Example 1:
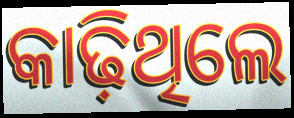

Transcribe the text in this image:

କାଢ଼ିଥିଲେ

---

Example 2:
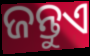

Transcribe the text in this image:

ଜନ୍ତୁଏ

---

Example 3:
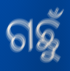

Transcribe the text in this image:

ଗଛୁଁ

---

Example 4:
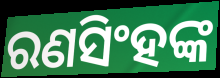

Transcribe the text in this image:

ରଣସିଂହଙ୍କ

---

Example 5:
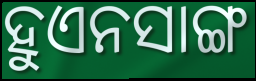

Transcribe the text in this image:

ହୁଏନସାଙ୍ଗ